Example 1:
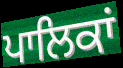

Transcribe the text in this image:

ਪਾਲਿਕਾਂ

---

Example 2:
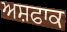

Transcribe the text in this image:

ਅਸ਼ਫਾਕ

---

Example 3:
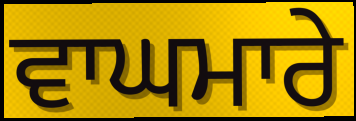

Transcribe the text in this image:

ਵਾਘਮਾਰੇ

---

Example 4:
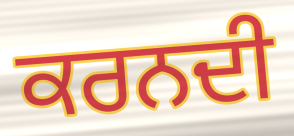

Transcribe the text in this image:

ਕਰਨਦੀ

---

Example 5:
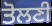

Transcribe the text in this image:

ਤੋਲਣੀ